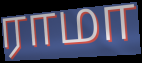
ராமா